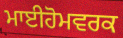
ਮਾਈਹੋਮਵਰਕ